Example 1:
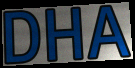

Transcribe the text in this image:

DHA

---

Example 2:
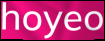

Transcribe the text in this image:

hoyeo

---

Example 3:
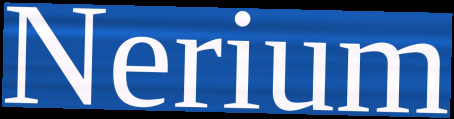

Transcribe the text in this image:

Nerium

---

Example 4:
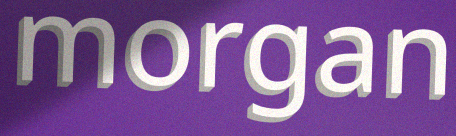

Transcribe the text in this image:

morgan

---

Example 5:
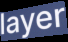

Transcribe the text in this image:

layer